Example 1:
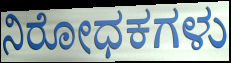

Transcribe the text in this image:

ನಿರೋಧಕಗಳು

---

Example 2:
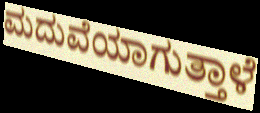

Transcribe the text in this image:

ಮದುವೆಯಾಗುತ್ತಾಳೆ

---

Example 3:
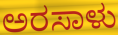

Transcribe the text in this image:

ಅರಸಾಳು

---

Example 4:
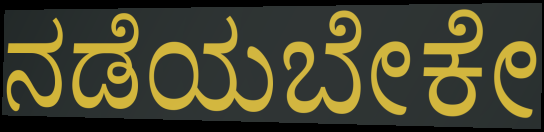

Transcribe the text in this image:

ನಡೆಯಬೇಕೇ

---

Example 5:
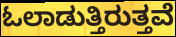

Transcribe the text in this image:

ಓಲಾಡುತ್ತಿರುತ್ತವೆ